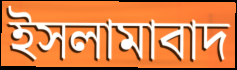
ইসলামাবাদ